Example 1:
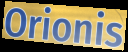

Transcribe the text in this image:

Orionis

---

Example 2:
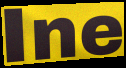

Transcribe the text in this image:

Ine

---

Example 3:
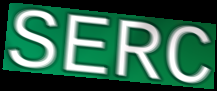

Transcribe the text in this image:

SERC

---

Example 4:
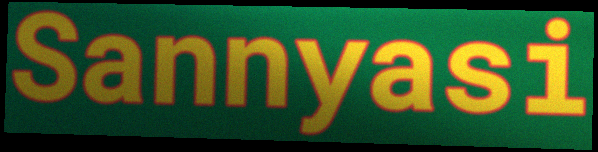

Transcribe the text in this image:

Sannyasi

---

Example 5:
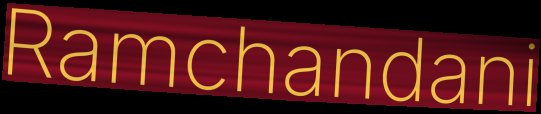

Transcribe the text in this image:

Ramchandani